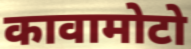
कावामोटो